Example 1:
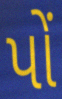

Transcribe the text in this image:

પોં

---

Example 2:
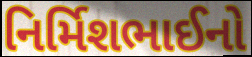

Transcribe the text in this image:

નિર્મિશભાઈનો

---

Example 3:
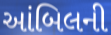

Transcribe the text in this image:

આંબિલની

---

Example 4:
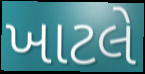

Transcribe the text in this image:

ખાટલે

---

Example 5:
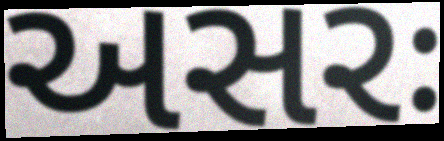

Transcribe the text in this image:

અસરઃ